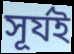
সূৰ্যই